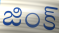
జింక్